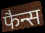
फैन्स